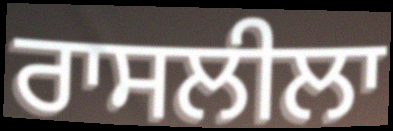
ਰਾਸਲੀਲਾ